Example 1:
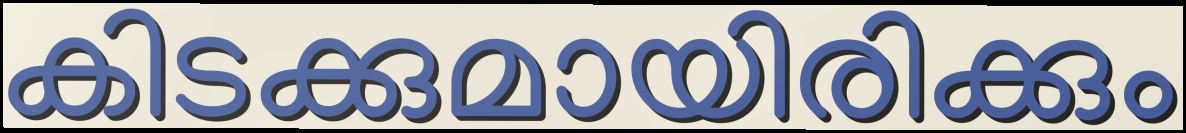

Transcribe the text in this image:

കിടക്കുമായിരിക്കും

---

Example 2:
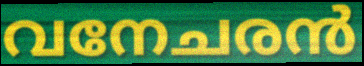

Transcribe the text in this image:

വനേചരൻ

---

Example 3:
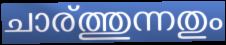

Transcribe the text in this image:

ചാര്ത്തുന്നതും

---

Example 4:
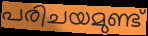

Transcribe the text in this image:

പരിചയമുണ്ട്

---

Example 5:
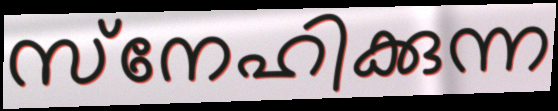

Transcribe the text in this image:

സ്‌നേഹിക്കുന്ന